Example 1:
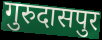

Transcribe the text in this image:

गुरुदासपुर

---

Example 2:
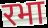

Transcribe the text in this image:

रभा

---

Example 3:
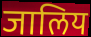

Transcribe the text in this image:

जालिय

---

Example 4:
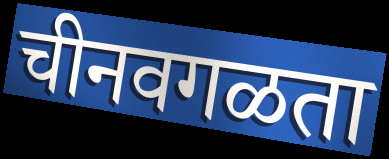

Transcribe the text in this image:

चीनवगळता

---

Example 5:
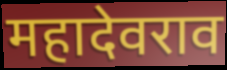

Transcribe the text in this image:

महादेवराव